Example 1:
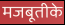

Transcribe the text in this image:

मजबूतीके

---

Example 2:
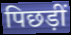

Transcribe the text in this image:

पिछड़ीं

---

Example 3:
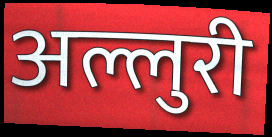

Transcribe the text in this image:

अल्लुरी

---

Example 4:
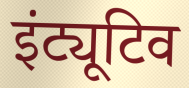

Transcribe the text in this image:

इंट्यूटिव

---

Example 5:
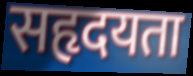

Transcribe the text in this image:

सहृदयता